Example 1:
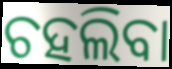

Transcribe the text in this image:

ଚହଲିବା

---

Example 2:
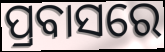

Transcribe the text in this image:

ପ୍ରବାସରେ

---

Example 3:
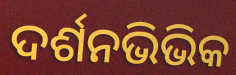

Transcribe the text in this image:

ଦର୍ଶନଭିଭିକ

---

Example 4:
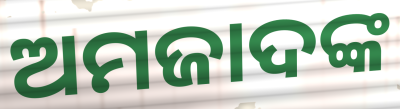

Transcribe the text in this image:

ଅମଜାଦଙ୍କ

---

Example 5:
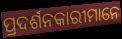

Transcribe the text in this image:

ପ୍ରଦର୍ଶନକାରୀମାନେ